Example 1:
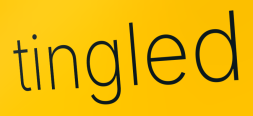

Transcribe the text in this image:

tingled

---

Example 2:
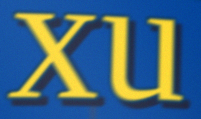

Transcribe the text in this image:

xu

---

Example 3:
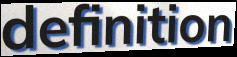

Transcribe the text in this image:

definition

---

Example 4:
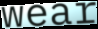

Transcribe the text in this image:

wear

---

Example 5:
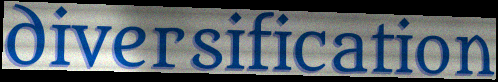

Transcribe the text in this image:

diversification